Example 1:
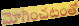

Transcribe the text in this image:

మోగించటంతో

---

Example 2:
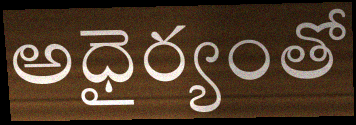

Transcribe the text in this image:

అధైర్యంతో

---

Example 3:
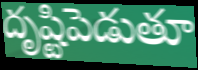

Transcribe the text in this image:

దృష్టిపెడుతూ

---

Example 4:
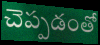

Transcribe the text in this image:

చెప్పడంతో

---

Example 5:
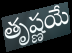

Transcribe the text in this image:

తృష్ణయే